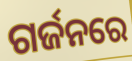
ଗର୍ଜନରେ